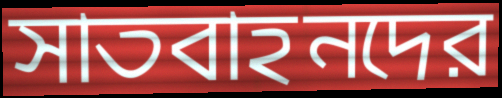
সাতবাহনদের